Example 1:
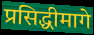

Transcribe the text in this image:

प्रसिद्धीमागे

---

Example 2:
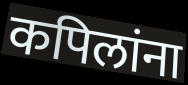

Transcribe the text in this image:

कपिलांना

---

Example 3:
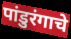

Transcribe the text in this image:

पांडुरंगाचे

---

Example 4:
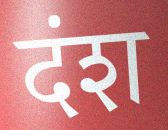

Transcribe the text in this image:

दंश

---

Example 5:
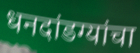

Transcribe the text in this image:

धनदांडग्यांचा